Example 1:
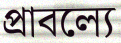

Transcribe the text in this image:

প্রাবল্যে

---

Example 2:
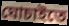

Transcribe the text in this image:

ঘোচাইতে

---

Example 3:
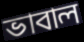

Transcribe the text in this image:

ভাবাল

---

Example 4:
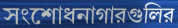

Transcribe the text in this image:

সংশোধনাগারগুলির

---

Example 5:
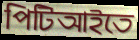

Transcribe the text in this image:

পিটিআইতে